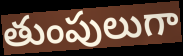
తుంపులుగా